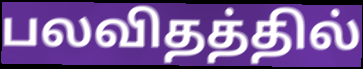
பலவிதத்தில்